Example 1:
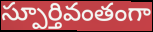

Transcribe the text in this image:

స్పూర్తివంతంగా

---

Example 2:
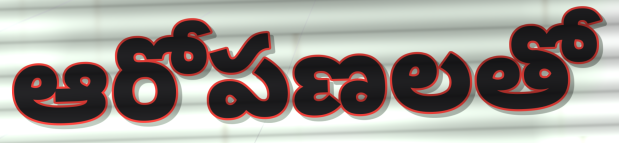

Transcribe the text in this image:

ఆరోపణలతో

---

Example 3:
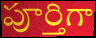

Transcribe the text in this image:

పూర్తిగా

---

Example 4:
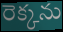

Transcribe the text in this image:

రెక్కను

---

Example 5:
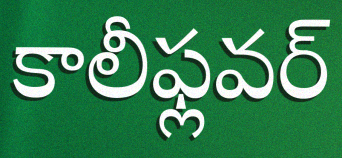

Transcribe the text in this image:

కాలీఫ్లవర్